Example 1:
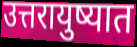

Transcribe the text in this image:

उत्तरायुष्यात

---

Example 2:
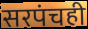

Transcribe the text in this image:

सरपंचही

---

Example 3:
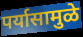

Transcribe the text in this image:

पर्यासामुळे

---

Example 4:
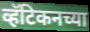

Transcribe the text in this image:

व्हॅटिकनच्या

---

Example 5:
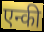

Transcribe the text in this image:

एन्की